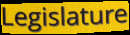
Legislature